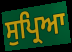
ਸੁਪ੍ਰਿਆ